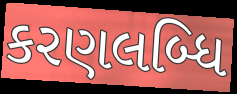
કરણલબ્ધિ